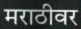
मराठीवर